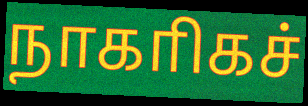
நாகரிகச்